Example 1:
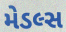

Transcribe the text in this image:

મેડલ્સ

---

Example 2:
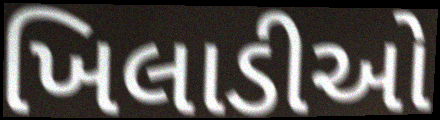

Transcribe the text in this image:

ખિલાડીઓ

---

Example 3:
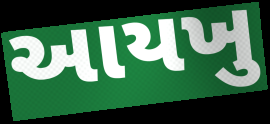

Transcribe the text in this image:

આયખુ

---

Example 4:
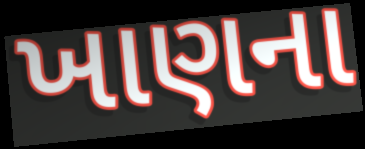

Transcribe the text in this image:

ખાણના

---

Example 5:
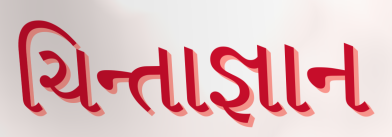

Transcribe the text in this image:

ચિન્તાજ્ઞાન